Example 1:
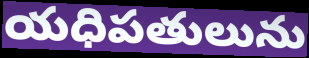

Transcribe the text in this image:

యధిపతులును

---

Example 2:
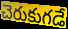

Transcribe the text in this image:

చెరుకుగడే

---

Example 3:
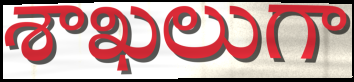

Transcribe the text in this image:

శాఖలుగా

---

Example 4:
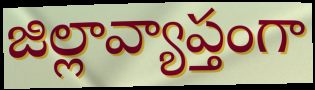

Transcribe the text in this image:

జిల్లావ్యాప్తంగా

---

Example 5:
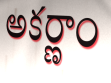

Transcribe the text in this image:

అకర్ణాం